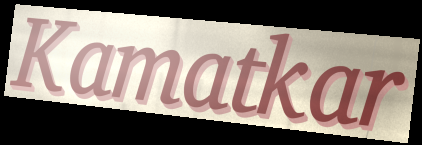
Kamatkar